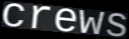
crews